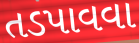
તડપાવવા